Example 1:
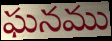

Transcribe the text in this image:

ఘనము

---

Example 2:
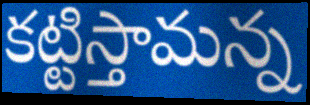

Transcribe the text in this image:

కట్టిస్తామన్న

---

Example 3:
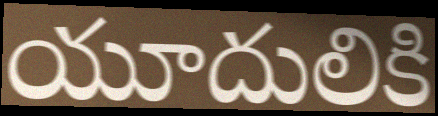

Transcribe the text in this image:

యూదులికి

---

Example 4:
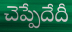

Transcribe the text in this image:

చెప్పేదేదీ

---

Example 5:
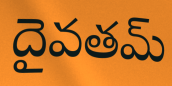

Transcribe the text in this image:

దైవతమ్